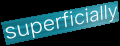
superficially